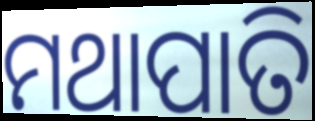
ମଥାପାତି